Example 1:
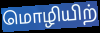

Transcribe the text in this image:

மொழியிற்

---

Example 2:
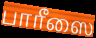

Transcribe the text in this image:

பாரீஸை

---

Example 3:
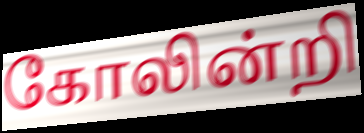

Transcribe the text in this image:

கோலின்றி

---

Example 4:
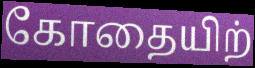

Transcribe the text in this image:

கோதையிற்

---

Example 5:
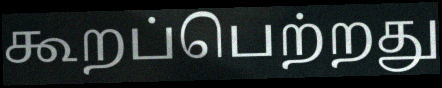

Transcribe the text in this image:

கூறப்பெற்றது